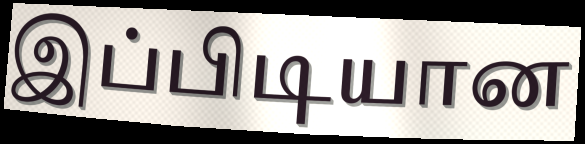
இப்பிடியான